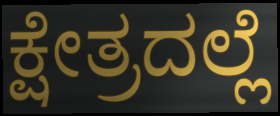
ಕ್ಷೇತ್ರದಲ್ಲೆ